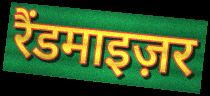
रैंडमाइज़र